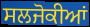
ਸਲਜੋਕੀਆਂ